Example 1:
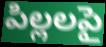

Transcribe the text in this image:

పిల్లలపై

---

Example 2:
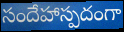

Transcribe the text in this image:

సందేహాస్పదంగా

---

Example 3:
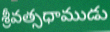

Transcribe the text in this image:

శ్రీవత్సధాముడు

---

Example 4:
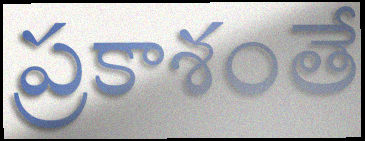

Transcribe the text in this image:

ప్రకాశంతే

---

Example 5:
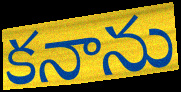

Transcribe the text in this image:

కనాను